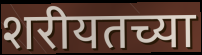
शरीयतच्या